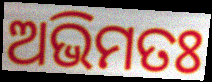
ଅଭିମତଃ